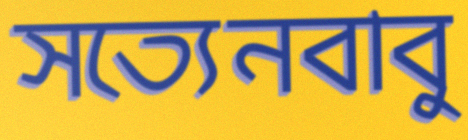
সত্যেনবাবু